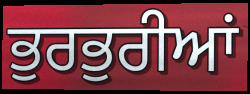
ਭੁਰਭੁਰੀਆਂ